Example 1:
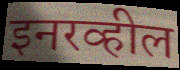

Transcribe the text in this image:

इनरव्हील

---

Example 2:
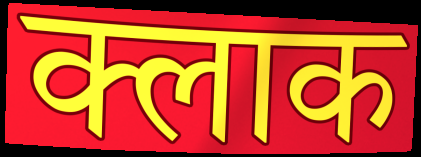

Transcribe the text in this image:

क्लाक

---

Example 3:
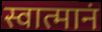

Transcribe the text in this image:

स्वात्मानं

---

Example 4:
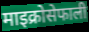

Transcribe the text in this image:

माइक्रोसेफाली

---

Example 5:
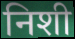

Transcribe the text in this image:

निशी